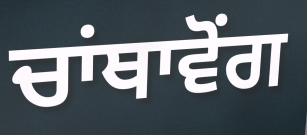
ਚਾਂਥਾਵੋਂਗ